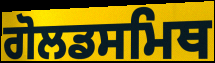
ਗੋਲਡਸਮਿਥ